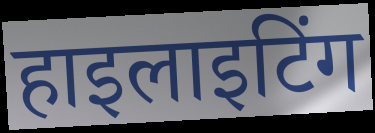
हाइलाइटिंग